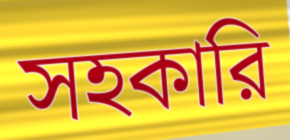
সহকারি